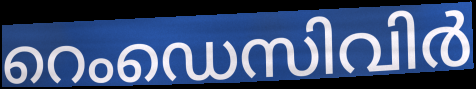
റെംഡെസിവിർ